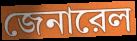
জেনারেল